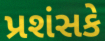
પ્રશંસકે